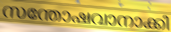
സന്തോഷവാനാക്കി